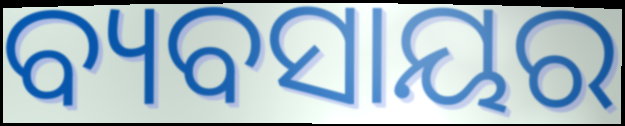
ବ୍ୟବସାୟର